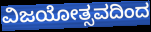
ವಿಜಯೋತ್ಸವದಿಂದ